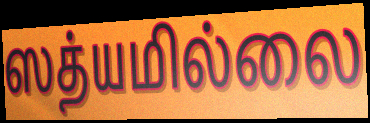
ஸத்யமில்லை